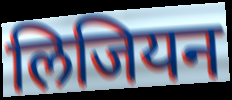
लिजियन